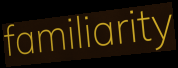
familiarity